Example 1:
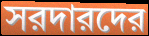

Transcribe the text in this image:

সরদারদের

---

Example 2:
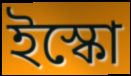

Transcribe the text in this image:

ইস্কো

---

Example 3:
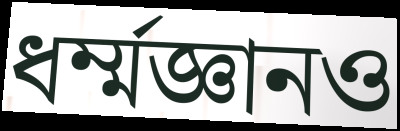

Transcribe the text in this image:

ধর্ম্মজ্ঞানও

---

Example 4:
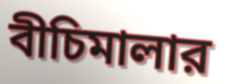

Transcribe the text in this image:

বীচিমালার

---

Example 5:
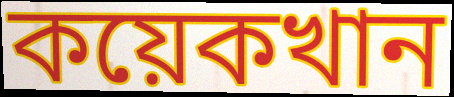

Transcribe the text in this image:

কয়েকখান